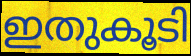
ഇതുകൂടി